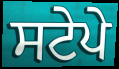
ਸਟੇਪੇ